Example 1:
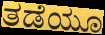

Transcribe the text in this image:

ತಡೆಯೂ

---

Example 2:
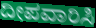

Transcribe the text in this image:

ದೀಪವಾರಿಸಿ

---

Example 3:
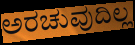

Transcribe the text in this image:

ಅರಚುವುದಿಲ್ಲ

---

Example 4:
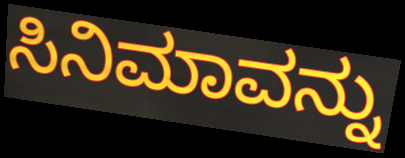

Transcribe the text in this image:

ಸಿನಿಮಾವನ್ನು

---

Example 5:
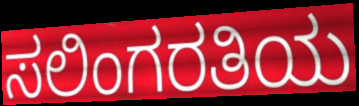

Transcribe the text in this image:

ಸಲಿಂಗರತಿಯ